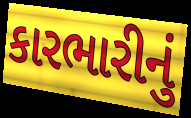
કારભારીનું